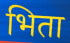
भिता